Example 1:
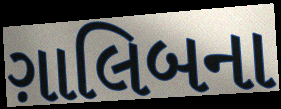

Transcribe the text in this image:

ગ઼ાલિબના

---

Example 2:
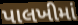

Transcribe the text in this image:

પાલખીમાં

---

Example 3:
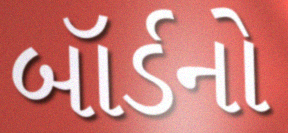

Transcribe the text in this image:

બૉર્ડનો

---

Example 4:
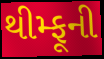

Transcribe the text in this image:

થીમ્ફૂની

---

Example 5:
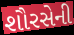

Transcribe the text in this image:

શૌરસેની